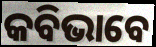
କବିଭାବେ